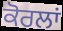
ਕੋਰਲਾਂ